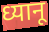
ध्यानू